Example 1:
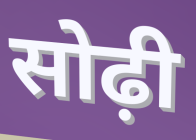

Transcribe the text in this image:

सोढ़ी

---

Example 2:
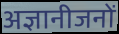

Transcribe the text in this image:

अज्ञानीजनों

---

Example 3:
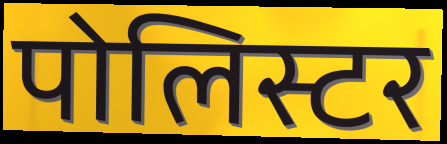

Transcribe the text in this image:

पोलिस्टर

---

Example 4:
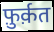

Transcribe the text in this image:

फ़ुर्क़त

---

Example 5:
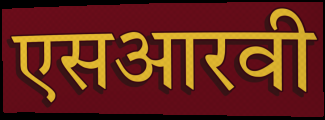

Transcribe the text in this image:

एसआरवी